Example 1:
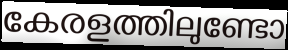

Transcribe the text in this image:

കേരളത്തിലുണ്ടോ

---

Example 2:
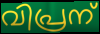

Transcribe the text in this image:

വിപ്രന്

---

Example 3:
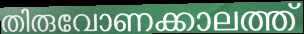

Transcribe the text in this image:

തിരുവോണക്കാലത്ത്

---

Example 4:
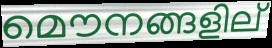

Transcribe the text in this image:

മൌനങ്ങളില്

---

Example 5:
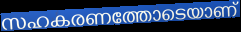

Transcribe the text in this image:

സഹകരണത്തോടെയാണ്